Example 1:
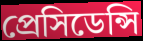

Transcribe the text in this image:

প্রেসিডেন্সি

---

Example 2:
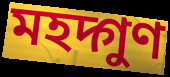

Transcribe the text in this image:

মহদ্গুণ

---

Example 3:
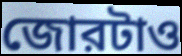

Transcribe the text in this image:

জোরটাও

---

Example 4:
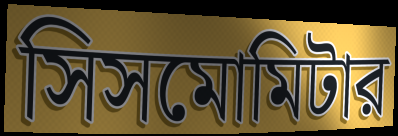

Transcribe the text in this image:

সিসমোমিটার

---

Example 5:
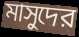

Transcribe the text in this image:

মাসুদের